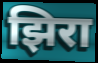
झिरा